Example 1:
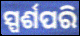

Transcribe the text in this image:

ସ୍ପର୍ଶପରି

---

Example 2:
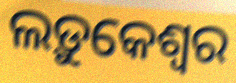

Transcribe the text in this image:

ଲଡ଼ୁକେଶ୍ୱର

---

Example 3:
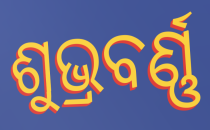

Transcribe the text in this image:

ଶୁଭ୍ରବର୍ଣ୍ଣ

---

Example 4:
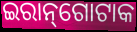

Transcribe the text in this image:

ଇରାନ୍‌ଗୋଟାକ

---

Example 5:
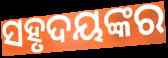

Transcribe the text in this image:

ସହୃଦୟଙ୍କର